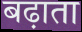
बढ़ाता